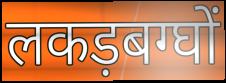
लकड़बग्घों